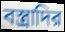
বস্ত্রাদির